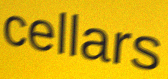
cellars